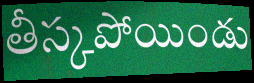
తీస్కపోయిండు